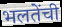
भलतेंची